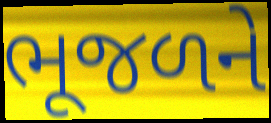
ભૂજળને